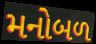
મનોબળ